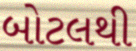
બોટલથી